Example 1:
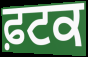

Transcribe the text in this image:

ਫ਼ਟਕ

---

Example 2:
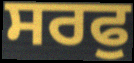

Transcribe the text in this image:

ਸਰਫੁ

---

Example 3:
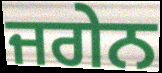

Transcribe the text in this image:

ਜਗੇਨ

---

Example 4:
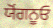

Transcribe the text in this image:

ਯੋਂਗਨੂਓ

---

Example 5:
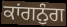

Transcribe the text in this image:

ਕਾਂਗਨੁੰਗ